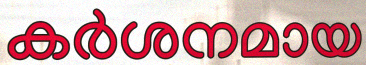
കർശനമായ